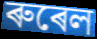
ৰুৰেল